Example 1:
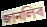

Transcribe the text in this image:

জানলিৰ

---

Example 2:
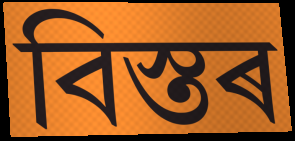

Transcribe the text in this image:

বিস্তৰ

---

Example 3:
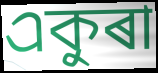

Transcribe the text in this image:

একুৰা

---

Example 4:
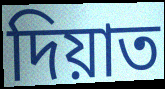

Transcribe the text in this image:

দিয়াত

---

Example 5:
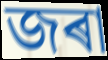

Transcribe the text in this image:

জৰা